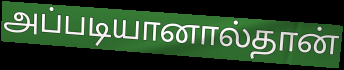
அப்படியானால்தான்